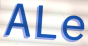
ALe